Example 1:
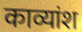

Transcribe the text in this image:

काव्यांश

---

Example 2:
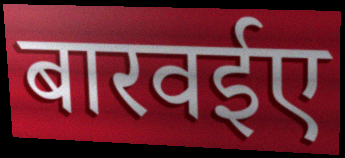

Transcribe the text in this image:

बारवईए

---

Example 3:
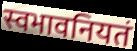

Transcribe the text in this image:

स्वभावनियतं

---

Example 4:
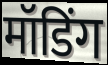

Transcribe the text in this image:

मॉडिंग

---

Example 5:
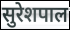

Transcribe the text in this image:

सुरेशपाल